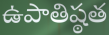
ఉపాతిష్ఠత